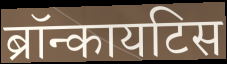
ब्रॉन्कायटिस